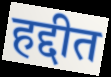
हद्दीत